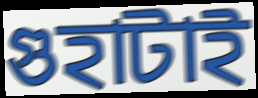
গুহাটাই